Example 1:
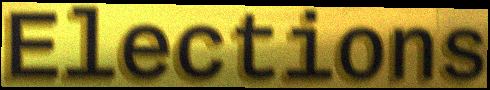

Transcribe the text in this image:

Elections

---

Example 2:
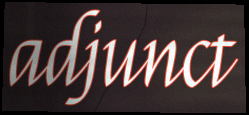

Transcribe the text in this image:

adjunct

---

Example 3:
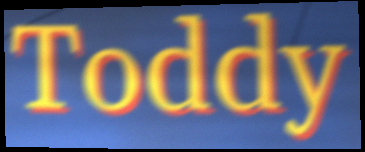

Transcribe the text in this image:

Toddy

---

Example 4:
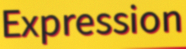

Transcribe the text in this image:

Expression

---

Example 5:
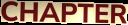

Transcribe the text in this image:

CHAPTER